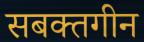
सबक्तगीन